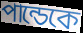
পান্ডেকে